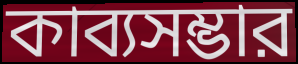
কাব্যসম্ভার